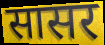
सासर